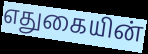
எதுகையின்